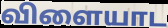
விளையாட